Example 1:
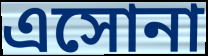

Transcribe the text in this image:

এসোনা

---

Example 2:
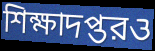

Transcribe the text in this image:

শিক্ষাদপ্তরও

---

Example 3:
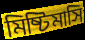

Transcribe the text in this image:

মিষ্টিমাসি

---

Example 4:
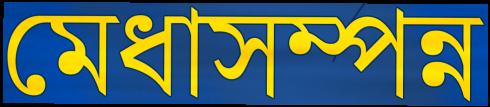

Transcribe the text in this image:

মেধাসম্পন্ন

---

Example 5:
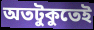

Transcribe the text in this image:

অতটুকুতেই